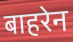
बाहरेन